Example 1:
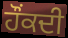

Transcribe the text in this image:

ਹੌਂਕਦੀ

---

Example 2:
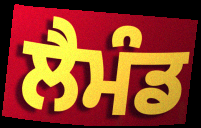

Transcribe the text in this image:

ਲੈਮੰਡ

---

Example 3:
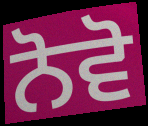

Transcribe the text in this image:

ਨੋਵੋ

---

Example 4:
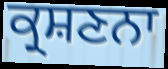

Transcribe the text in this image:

ਕ੍ਰਸ਼ਣਨਾ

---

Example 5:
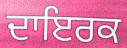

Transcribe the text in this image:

ਦਾਇਰਕ